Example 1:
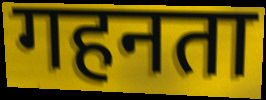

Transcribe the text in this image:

गहनता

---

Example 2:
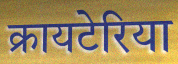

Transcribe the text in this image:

क्रायटेरिया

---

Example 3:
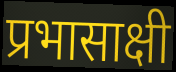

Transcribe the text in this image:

प्रभासाक्षी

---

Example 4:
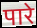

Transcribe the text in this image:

पारे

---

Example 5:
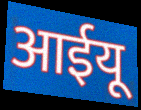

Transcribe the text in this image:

आईयू